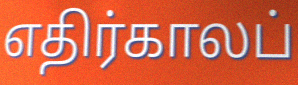
எதிர்காலப்